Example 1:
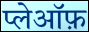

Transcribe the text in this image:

प्लेऑफ़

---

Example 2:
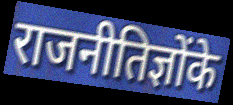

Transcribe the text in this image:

राजनीतिज्ञोंके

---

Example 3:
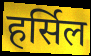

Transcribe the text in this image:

हर्सिल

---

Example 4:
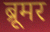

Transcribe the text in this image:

ब्रूमर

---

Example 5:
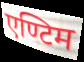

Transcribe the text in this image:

एण्टिम